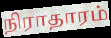
நிராதாரம்